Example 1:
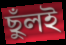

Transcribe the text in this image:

ছুঁলই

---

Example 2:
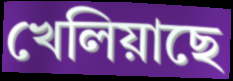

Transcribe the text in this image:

খেলিয়াছে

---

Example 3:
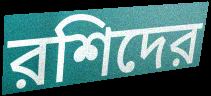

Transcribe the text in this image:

রশিদের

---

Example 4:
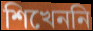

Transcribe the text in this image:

শিখেননি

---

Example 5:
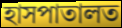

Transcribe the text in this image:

হাসপাতালত